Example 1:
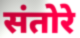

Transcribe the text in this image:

संतोरे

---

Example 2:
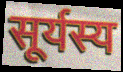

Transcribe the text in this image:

सूर्यस्य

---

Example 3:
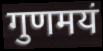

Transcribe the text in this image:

गुणमयं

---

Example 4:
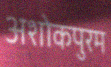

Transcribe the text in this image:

अशोकपुरम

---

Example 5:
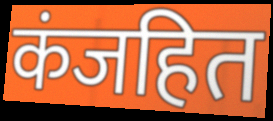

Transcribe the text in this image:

कंजहित